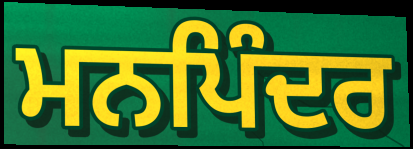
ਮਨਪਿੰਦਰ